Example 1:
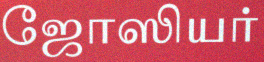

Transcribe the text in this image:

ஜோஸியர்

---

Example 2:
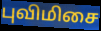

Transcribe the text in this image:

புவிமிசை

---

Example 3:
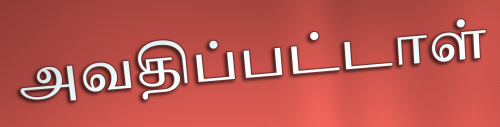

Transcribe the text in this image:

அவதிப்பட்டாள்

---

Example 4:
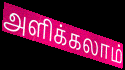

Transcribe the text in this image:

அளிக்கலாம்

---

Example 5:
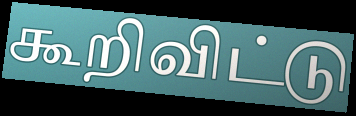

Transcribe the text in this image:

கூறிவிட்டு